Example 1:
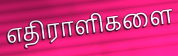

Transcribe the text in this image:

எதிராளிகளை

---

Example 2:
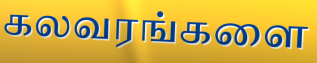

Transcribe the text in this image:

கலவரங்களை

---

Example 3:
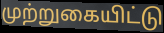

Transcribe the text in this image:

முற்றுகையிட்டு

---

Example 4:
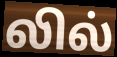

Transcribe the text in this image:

லில்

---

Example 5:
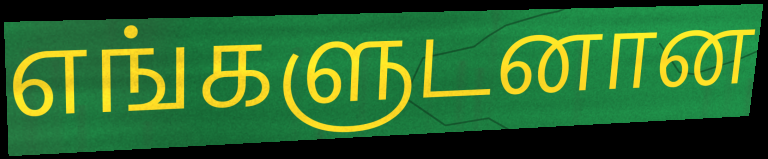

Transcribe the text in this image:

எங்களுடனான